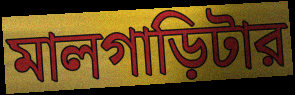
মালগাড়িটার